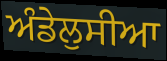
ਅੰਡੇਲੁਸੀਆ